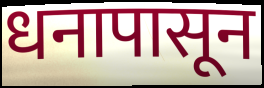
धनापासून